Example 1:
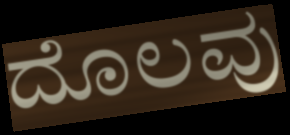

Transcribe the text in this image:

ದೊಲವು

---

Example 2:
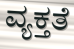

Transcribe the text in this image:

ವ್ಯಕ್ತತೆ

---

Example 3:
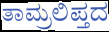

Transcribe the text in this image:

ತಾಮ್ರಲಿಪ್ತದ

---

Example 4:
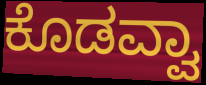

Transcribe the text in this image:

ಕೊಡವ್ವಾ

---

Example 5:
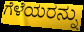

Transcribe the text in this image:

ಗೆಳೆಯರನ್ನು